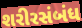
શરીરસંબંધ